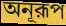
অনূরূপ